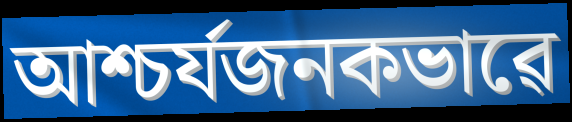
আশ্চৰ্যজনকভাৱে